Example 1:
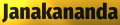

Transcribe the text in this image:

Janakananda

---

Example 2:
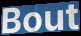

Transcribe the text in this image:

Bout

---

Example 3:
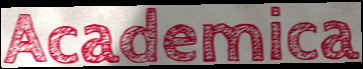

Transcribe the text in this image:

Academica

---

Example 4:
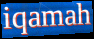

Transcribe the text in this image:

iqamah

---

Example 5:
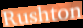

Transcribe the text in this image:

Rushton